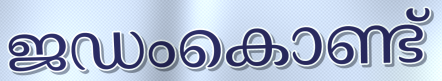
ജഡംകൊണ്ട്